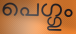
പെഗ്ഗും